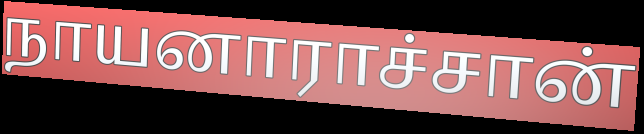
நாயனாராச்சான்